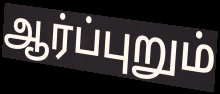
ஆர்ப்புறும்